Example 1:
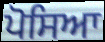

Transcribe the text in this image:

ਪੋਸਿਆ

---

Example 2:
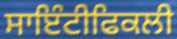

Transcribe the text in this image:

ਸਾਇੰਟੀਫਿਕਲੀ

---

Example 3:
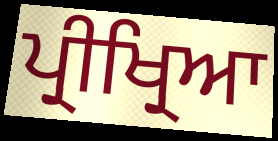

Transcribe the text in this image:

ਪ੍ਰੀਖ੍ਰਿਆ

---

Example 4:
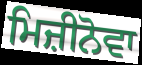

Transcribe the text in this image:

ਮਿਜ਼ੀਨੋਵਾ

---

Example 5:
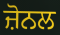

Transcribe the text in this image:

ਜ਼ੋਨਲ